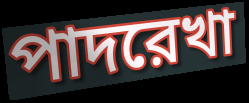
পাদরেখা